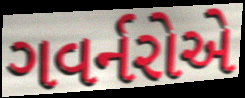
ગવર્નરોએ